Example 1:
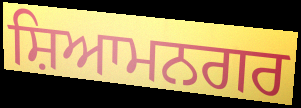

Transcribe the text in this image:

ਸ਼ਿਆਮਨਗਰ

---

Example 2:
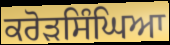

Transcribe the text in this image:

ਕਰੋੜਸਿੰਘਿਆ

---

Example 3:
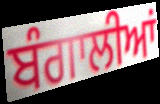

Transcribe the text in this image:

ਬੰਗਾਲੀਆਂ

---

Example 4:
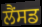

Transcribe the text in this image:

ਲੈਂਸਡ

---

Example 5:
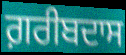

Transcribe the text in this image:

ਗ਼ਰੀਬਦਾਸ